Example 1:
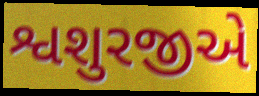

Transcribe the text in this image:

શ્વશુરજીએ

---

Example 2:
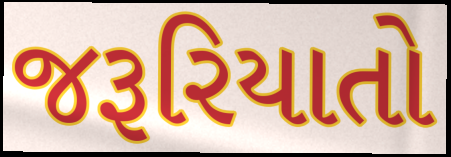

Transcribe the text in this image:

જરૂરિયાતો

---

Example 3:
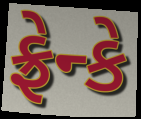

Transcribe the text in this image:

ફ્રેન્કે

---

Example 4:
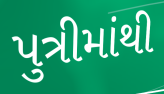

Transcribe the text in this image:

પુત્રીમાંથી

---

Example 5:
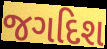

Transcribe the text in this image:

જગદિશ